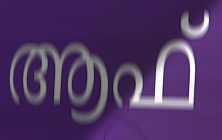
ആഫ്